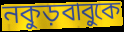
নকুড়বাবুকে